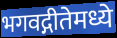
भगवद्गीतेमध्ये